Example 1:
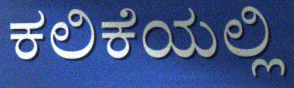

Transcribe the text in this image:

ಕಲಿಕೆಯಲ್ಲಿ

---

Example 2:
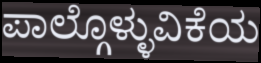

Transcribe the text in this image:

ಪಾಲ್ಗೊಳ್ಳುವಿಕೆಯ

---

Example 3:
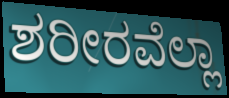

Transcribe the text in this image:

ಶರೀರವೆಲ್ಲಾ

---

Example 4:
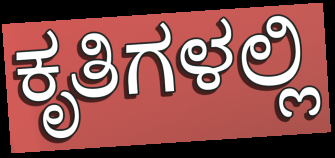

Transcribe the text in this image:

ಕೃತಿಗಳಲ್ಲಿ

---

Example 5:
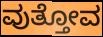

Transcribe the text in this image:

ವುತ್ತೋವ